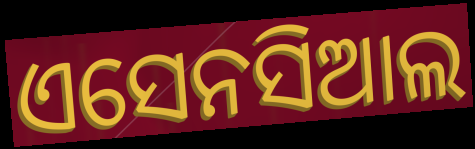
ଏସେନସିଆଲ